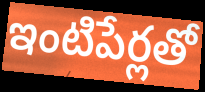
ఇంటిపేర్లతో